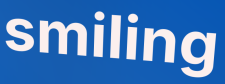
smiling